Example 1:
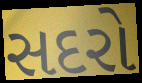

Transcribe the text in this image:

સદરો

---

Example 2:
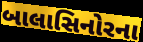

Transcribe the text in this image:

બાલાસિનોરના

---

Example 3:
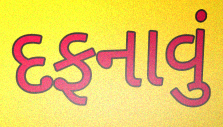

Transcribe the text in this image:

દફનાવું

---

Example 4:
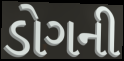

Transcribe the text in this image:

ડોગની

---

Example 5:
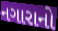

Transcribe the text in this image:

નગારાનો